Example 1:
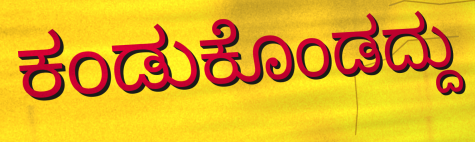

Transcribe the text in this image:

ಕಂಡುಕೊಂಡದ್ದು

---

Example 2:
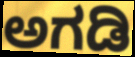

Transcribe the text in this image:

ಅಗಡಿ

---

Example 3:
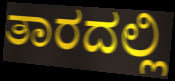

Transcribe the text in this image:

ತಾರದಲ್ಲಿ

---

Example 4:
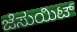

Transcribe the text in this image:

ಜೆಸುಯಿಟ್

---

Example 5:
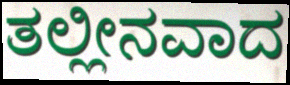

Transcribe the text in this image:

ತಲ್ಲೀನವಾದ